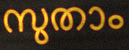
സുതാം